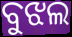
ବୁଝଲ